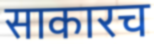
साकारच